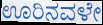
ಊರಿನವಳೇ